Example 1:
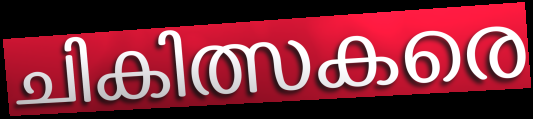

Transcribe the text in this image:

ചികിത്സകരെ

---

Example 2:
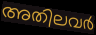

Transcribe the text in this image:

അതിലവർ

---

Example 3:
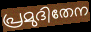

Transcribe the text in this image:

പ്രമുദിതേന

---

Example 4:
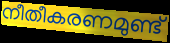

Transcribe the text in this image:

നീതീകരണമുണ്ട്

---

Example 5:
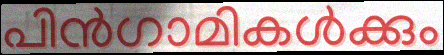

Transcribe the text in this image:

പിൻഗാമികൾക്കും